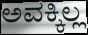
ಅವಕ್ಕಿಲ್ಲ